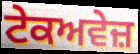
ਟੇਕਅਵੇਜ਼